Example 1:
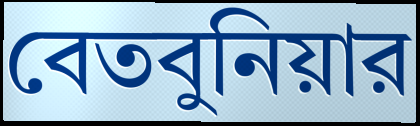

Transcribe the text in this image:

বেতবুনিয়ার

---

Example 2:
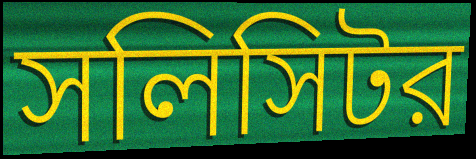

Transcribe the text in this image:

সলিসিটর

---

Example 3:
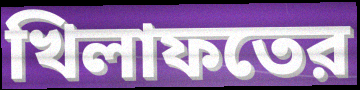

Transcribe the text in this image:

খিলাফতের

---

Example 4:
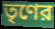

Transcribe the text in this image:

তৃণের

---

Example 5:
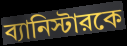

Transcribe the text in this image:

ব্যানিস্টারকে